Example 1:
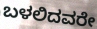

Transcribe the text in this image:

ಬಳಲಿದವರೇ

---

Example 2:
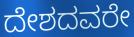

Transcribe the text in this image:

ದೇಶದವರೇ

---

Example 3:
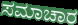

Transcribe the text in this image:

ಸಮಾಚಾರ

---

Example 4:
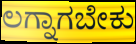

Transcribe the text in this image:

ಲಗ್ನಾಗಬೇಕು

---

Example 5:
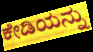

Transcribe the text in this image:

ಕೇಡಿಯನ್ನು